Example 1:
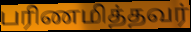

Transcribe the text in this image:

பரிணமித்தவர்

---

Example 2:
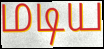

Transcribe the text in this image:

மடிய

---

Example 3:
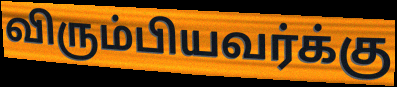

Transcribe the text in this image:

விரும்பியவர்க்கு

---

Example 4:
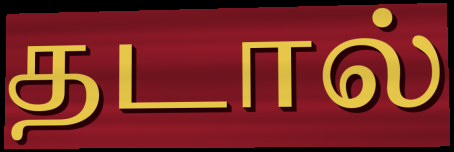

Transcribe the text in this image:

தடால்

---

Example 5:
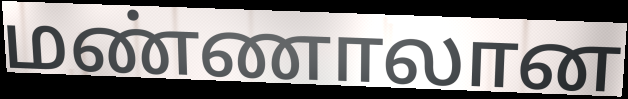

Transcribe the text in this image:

மண்ணாலான